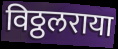
विठ्ठलराया